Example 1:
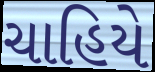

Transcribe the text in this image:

ચાહિયે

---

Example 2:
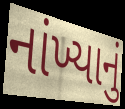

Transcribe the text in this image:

નાંખ્યાનું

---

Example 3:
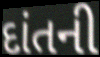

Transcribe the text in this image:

દાંતની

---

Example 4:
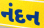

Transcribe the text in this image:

નંદન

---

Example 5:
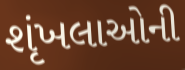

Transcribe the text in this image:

શૃંખલાઓની